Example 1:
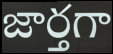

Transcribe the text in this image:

జార్తగా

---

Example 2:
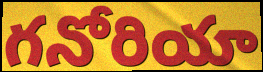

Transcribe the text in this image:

గనోరియా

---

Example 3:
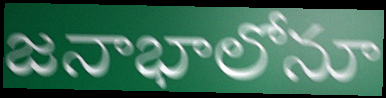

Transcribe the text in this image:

జనాభాలోనూ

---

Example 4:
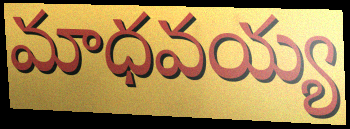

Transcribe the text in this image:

మాధవయ్య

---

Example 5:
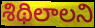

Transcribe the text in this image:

శిథిలాలని